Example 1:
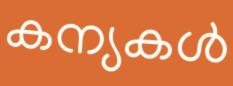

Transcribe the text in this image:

കന്യകൾ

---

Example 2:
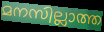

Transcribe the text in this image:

മനസില്ലാത്ത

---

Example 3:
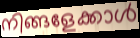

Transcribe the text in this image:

നിങ്ങളേക്കാൾ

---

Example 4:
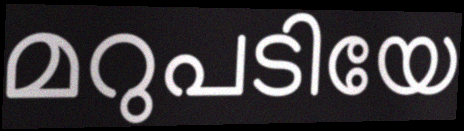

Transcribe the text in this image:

മറുപടിയേ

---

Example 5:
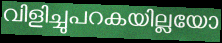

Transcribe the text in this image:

വിളിച്ചുപറകയില്ലയോ